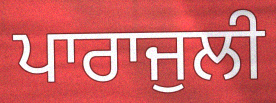
ਪਾਰਾਜੁਲੀ